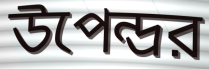
উপেন্দ্রর